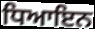
ਧਿਆਇਨ